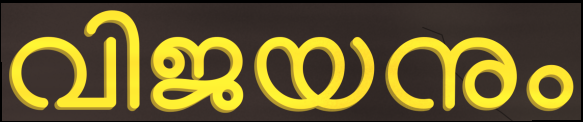
വിജയനും